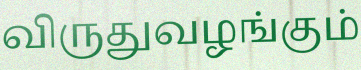
விருதுவழங்கும்